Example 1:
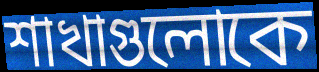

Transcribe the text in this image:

শাখাগুলোকে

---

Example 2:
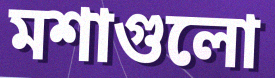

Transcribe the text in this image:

মশাগুলো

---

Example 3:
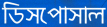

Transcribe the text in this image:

ডিসপোসাল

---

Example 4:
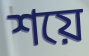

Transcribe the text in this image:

শয়ে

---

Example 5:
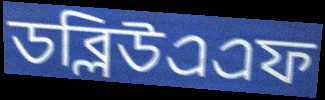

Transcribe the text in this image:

ডব্লিউএএফ